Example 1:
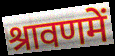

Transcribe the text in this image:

श्रावणमें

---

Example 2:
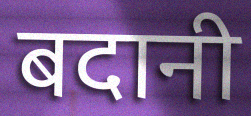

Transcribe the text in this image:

बदानी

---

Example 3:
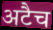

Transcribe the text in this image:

अटैच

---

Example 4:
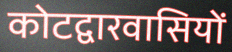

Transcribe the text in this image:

कोटद्वारवासियों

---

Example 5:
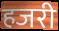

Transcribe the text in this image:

हजरी